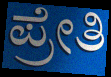
ಪ್ರೇತಿ